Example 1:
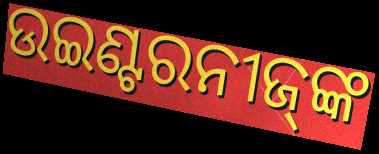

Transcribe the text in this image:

ଉଇଣ୍ଟରନୀଜ୍‌ଙ୍କ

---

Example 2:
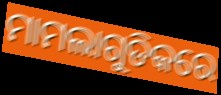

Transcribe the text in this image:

ମାମଲାଗୁଡିକରେ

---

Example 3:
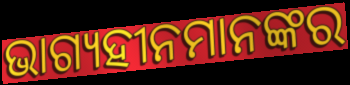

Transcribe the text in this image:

ଭାଗ୍ୟହୀନମାନଙ୍କର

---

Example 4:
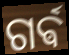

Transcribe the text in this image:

ଗର୍ଵ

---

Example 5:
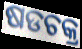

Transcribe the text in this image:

ଷଡଚକ୍ର